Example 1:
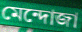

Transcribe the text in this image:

মেন্দোজা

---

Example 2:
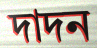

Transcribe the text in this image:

দাদন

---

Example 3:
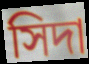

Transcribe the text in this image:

সিদা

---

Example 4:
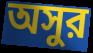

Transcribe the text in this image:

অসুর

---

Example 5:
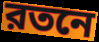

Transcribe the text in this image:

রতনে